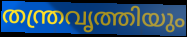
തന്ത്രവൃത്തിയും